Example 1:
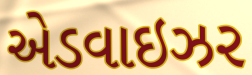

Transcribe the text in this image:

એડવાઇઝર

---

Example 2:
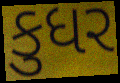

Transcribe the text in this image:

કુધર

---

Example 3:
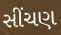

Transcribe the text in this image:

સીંચણ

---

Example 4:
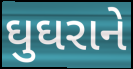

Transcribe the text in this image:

ઘુઘરાને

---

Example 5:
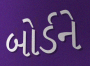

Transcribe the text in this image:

બોર્ડને